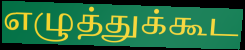
எழுத்துக்கூட